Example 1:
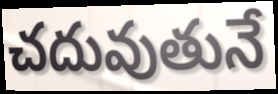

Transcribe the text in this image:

చదువుతునే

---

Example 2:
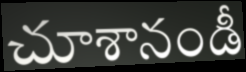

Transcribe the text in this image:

చూశానండీ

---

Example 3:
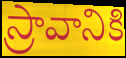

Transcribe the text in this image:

స్రావానికి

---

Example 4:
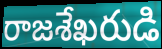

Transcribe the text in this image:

రాజశేఖరుడి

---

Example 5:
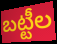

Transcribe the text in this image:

బట్టీల